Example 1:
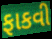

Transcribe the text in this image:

ફાકવી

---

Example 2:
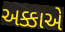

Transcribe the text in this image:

અક્કાએ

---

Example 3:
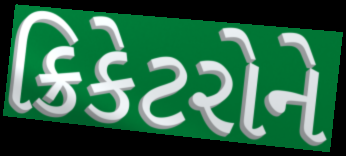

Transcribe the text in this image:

ક્રિકેટરોને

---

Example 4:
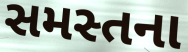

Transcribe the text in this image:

સમસ્તના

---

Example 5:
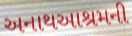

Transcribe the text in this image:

અનાથઆશ્રમની